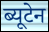
ब्यूटेन